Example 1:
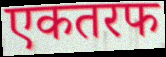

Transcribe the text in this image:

एकतरफ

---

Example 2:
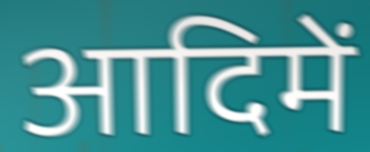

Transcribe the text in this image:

आदिमें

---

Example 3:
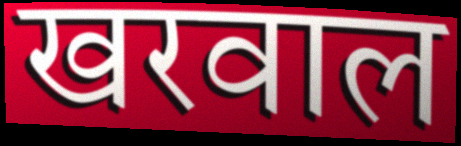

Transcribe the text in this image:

खरवाल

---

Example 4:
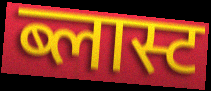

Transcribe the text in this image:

ब्लास्ट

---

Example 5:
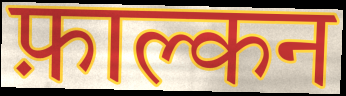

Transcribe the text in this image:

फ़ाल्कन